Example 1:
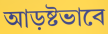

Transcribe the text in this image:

আড়ষ্টভাবে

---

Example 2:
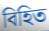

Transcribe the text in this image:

বিহিত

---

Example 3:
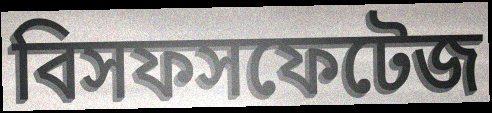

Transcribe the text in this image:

বিসফসফেটেজ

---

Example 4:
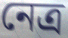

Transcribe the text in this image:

নেত্র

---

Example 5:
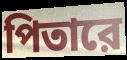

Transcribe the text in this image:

পিতারে